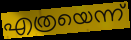
എത്രയെന്ന്